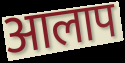
आलाप